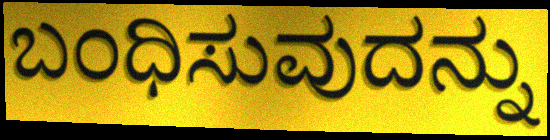
ಬಂಧಿಸುವುದನ್ನು